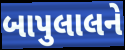
બાપુલાલને